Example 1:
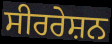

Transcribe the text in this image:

ਸੀਰਰੇਸ਼ਨ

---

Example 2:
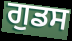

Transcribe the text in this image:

ਗੁਡਸ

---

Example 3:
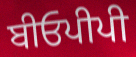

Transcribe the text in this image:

ਬੀਓਪੀਪੀ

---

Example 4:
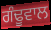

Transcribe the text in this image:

ਗੰਢੂਵਾਲ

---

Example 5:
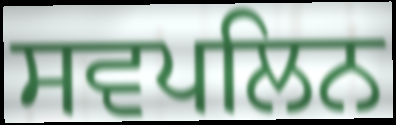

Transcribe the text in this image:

ਸਵਪਲਿਨ